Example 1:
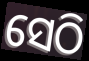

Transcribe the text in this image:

ସେଠି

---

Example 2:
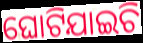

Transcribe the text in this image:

ଘୋଟିଯାଇଚି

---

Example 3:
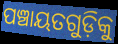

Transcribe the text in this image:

ପଞ୍ଚାୟତଗୁଡ଼ିକୁ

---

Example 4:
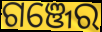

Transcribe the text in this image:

ଗଞ୍ଜେର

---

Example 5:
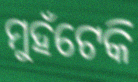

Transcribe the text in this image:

ମୁହଁଟେକି